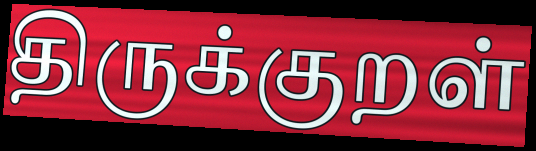
திருக்குறள்